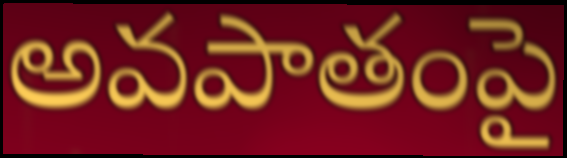
అవపాతంపై